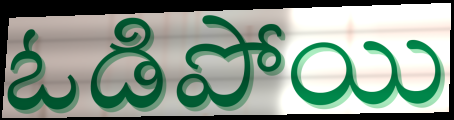
ఓడిపోయి